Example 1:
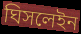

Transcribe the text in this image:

ঘিসলেইন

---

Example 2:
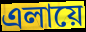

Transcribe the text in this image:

এলায়ে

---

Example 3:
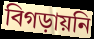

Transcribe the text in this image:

বিগড়ায়নি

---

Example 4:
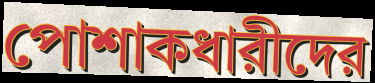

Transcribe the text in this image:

পোশাকধারীদের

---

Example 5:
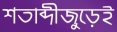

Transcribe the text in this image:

শতাব্দীজুড়েই